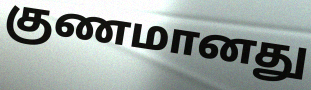
குணமானது